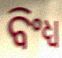
ବିଂଧ୍ୟ